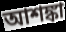
আশঙ্কা